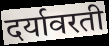
दर्यावरती